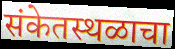
संकेतस्थळाचा